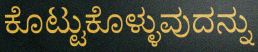
ಕೊಟ್ಟುಕೊಳ್ಳುವುದನ್ನು